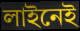
লাইনেই